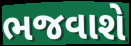
ભજવાશે